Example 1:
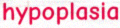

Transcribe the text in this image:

hypoplasia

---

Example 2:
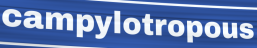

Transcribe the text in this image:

campylotropous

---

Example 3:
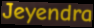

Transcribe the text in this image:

Jeyendra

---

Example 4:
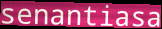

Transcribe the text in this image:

senantiasa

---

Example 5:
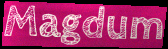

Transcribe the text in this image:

Magdum